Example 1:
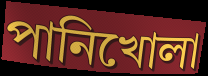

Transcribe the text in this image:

পানিখোলা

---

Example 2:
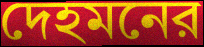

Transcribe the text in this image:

দেহমনের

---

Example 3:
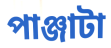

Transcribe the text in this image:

পাঞ্জাটা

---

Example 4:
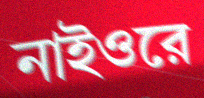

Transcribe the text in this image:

নাইওরে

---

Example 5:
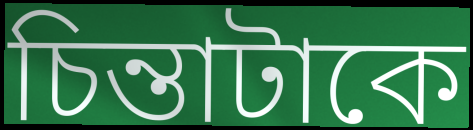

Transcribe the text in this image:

চিন্তাটাকে